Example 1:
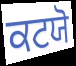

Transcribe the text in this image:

ਕਟਯੋ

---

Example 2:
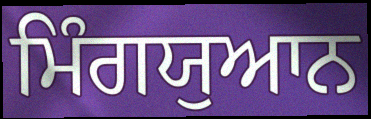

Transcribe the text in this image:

ਮਿੰਗਯੁਆਨ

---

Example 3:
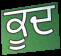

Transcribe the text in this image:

ਕੂਦ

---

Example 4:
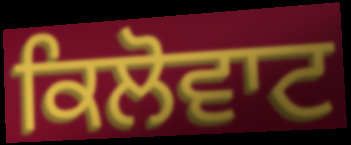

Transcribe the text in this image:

ਕਿਲੋਵਾਟ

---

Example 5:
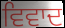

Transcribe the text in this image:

ਵਿਵਾਦ